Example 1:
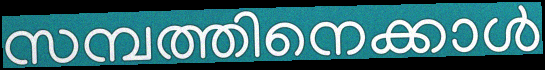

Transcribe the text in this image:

സമ്പത്തിനെക്കാൾ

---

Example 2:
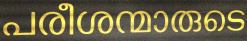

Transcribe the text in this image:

പരീശന്മാരുടെ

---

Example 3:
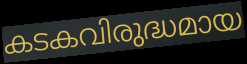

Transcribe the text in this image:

കടകവിരുദ്ധമായ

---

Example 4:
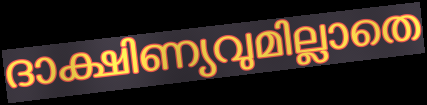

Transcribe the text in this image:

ദാക്ഷിണ്യവുമില്ലാതെ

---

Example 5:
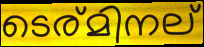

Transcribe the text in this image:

ടെര്മിനല്